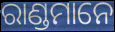
ରାଣ୍ଡମାନେ